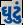
ઘુટું